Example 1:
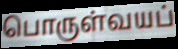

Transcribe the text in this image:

பொருள்வயப்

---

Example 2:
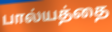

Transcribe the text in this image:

பால்யத்தை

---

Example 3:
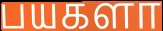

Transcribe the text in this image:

பயகளா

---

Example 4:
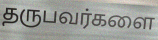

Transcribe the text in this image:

தருபவர்களை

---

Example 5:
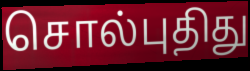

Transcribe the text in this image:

சொல்புதிது